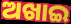
ଅଖାଇ